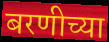
बरणीच्या